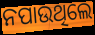
ନପାଉଥିଲେ